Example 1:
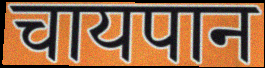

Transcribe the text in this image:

चायपान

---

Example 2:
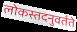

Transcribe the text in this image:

लोकस्तदनुवर्तते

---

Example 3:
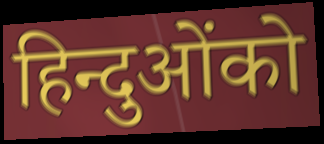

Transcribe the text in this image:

हिन्दुओंको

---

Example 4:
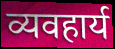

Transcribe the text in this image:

व्यवहार्य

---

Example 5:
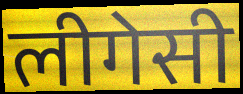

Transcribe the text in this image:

लीगेसी